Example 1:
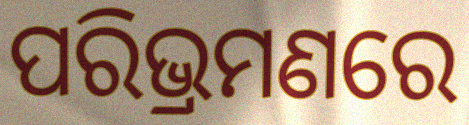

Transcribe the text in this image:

ପରିଭ୍ରମଣରେ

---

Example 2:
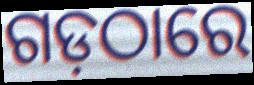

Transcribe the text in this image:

ଗଡ଼ଠାରେ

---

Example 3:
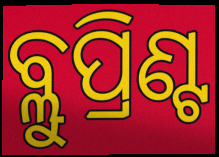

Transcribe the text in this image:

ବ୍ଲୁପ୍ରିଣ୍ଟ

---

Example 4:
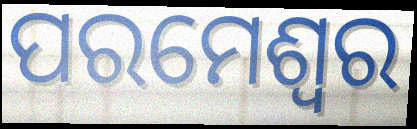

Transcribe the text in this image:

ପରମେଶ୍ୱର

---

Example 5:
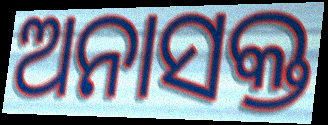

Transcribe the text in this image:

ଅନାସକ୍ତ